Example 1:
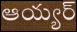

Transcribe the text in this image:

ఆయ్యర్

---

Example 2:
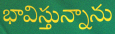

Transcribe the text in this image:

భావిస్తున్నాను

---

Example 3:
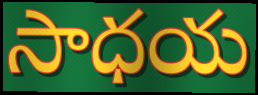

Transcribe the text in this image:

సాధయ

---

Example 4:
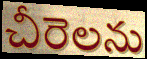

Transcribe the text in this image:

చీరెలను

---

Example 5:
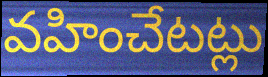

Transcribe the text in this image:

వహించేటట్లు